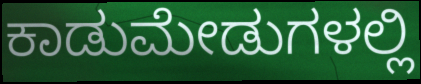
ಕಾಡುಮೇಡುಗಳಲ್ಲಿ